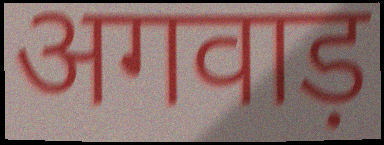
अगवाड़